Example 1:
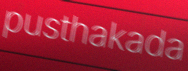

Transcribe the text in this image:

pusthakada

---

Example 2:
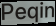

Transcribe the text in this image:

Peqin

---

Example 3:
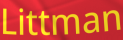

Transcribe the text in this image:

Littman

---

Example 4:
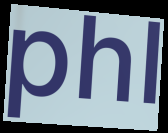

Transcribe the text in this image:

phl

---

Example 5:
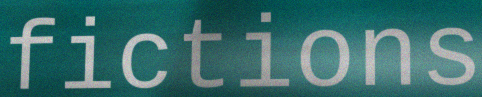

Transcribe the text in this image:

fictions